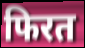
फिरत